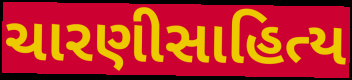
ચારણીસાહિત્ય